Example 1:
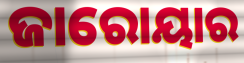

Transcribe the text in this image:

ଜାରୋୟାର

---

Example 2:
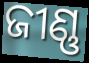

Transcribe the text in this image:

ଜୀଣ୍ଣ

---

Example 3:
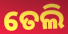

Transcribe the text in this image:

ତେଲି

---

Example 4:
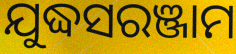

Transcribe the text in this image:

ଯୁଦ୍ଧସରଞ୍ଜାମ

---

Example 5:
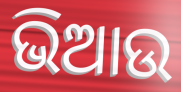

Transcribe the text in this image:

ଭିଆଉ